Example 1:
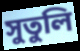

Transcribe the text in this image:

সুতুলি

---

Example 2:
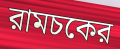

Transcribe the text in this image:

রামচকের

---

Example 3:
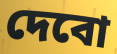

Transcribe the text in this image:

দেবো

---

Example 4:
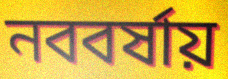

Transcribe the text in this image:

নববর্ষায়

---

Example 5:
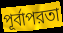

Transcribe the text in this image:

পূর্বাপরতা